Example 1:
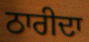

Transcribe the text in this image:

ਠਾਰੀਦਾ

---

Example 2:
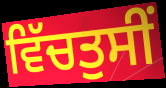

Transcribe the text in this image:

ਵਿੱਚਤੁਸੀਂ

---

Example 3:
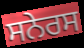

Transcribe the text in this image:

ਸਨੇਰਸ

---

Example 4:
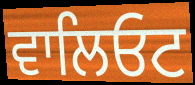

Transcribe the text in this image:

ਵਾਲਿਓਟ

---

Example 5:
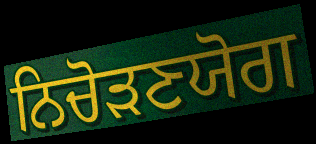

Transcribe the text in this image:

ਨਿਚੋੜਣਯੋਗ